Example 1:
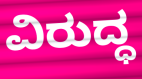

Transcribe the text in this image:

ವಿರುದ್ಧ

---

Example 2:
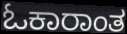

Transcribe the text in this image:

ಓಕಾರಾಂತ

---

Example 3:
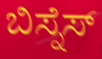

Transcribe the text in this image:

ಬಿಸ್ನೆಸ್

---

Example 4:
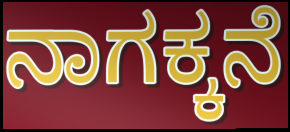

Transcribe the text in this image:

ನಾಗಕ್ಕನೆ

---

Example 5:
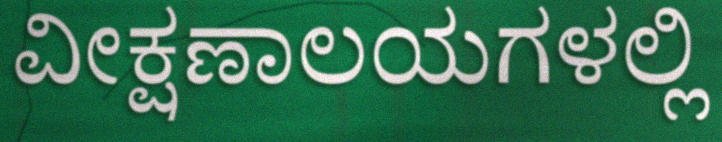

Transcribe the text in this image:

ವೀಕ್ಷಣಾಲಯಗಳಲ್ಲಿ